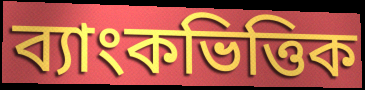
ব্যাংকভিত্তিক